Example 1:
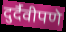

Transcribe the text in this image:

दुर्दैवीपणे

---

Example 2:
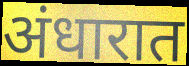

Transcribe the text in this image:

अंधारात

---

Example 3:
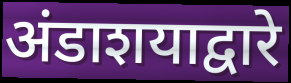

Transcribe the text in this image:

अंडाशयाद्वारे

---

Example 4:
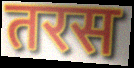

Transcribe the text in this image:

तरस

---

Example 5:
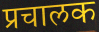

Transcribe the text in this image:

प्रचालक